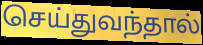
செய்துவந்தால்